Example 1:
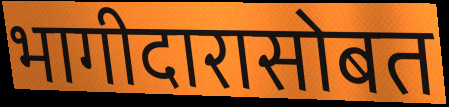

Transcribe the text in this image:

भागीदारासोबत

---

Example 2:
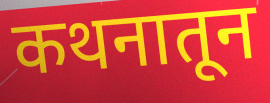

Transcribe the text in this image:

कथनातून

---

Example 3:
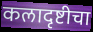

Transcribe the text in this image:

कलादृष्टीचा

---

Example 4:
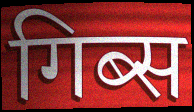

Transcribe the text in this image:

गिब्स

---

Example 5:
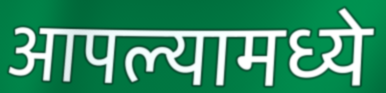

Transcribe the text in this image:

आपल्यामध्ये